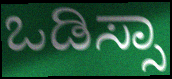
ಒಡಿಸ್ಸಾ